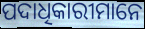
ପଦାଧିକାରୀମାନେ